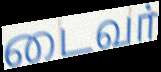
டைவர்